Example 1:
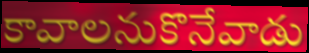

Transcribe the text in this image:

కావాలనుకొనేవాడు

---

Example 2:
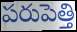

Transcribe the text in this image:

పరుపెత్తి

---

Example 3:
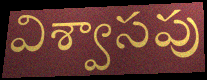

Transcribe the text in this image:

విశ్వాసపు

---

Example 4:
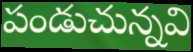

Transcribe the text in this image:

పండుచున్నవి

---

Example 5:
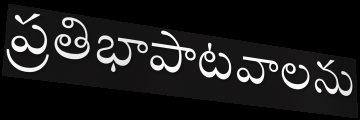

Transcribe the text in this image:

ప్రతిభాపాటవాలను